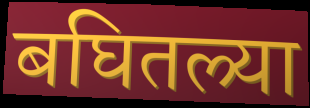
बघितल्या